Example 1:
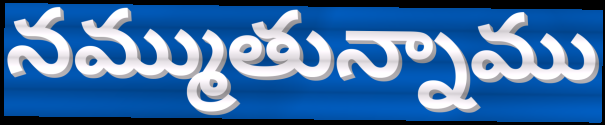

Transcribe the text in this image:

నమ్ముతున్నాము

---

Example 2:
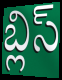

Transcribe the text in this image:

బ్లిస్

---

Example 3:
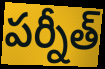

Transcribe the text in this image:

పర్నీత్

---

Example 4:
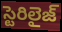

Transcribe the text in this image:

స్టెరిలైజ్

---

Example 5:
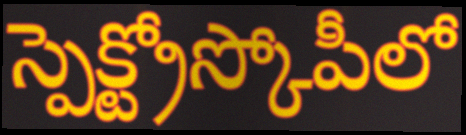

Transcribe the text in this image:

స్పెక్ట్రోస్కోపీలో